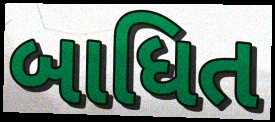
બાધિત